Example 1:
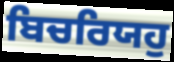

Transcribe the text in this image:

ਬਿਚਰਿਯਹੁ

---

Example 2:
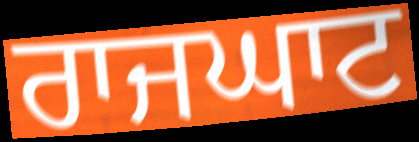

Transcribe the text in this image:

ਰਾਜਘਾਟ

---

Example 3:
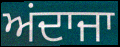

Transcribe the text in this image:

ਅਂਦਾਜਾ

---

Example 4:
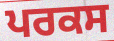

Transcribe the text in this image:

ਪਰਕਸ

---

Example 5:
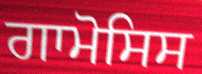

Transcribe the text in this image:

ਗਾਮੋਸਿਸ